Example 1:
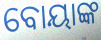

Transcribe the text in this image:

ବୋୟାଙ୍କ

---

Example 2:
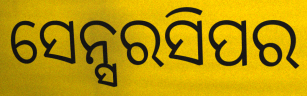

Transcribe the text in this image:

ସେନ୍ସରସିପର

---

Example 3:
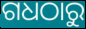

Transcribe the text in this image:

ଗଧଠାରୁ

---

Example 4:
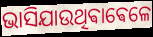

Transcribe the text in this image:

ଭାସିଯାଉଥିଵାଵେଳେ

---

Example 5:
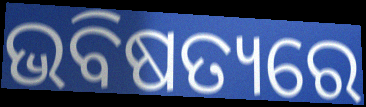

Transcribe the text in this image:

ଭବିଷତ୍ୟରେ